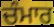
ਚੰਮਾਰ